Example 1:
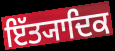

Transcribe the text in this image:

ਇੱਤ੍ਯਾਦਿਕ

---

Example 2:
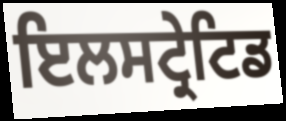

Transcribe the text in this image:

ਇਲਸਟ੍ਰੇਟਿਡ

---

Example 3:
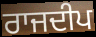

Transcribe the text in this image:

ਰਾਜਦੀਪ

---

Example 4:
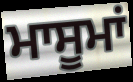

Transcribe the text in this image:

ਮਾਸੂਮਾਂ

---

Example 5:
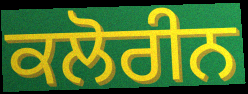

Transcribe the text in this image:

ਕਲੋਰੀਨ